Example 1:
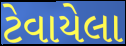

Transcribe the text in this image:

ટેવાયેલા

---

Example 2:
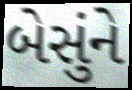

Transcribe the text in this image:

બેસુંને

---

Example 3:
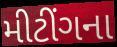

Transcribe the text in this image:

મીટીંગના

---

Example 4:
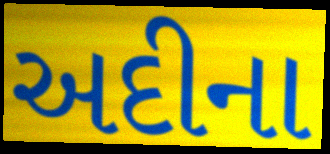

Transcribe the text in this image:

અદીના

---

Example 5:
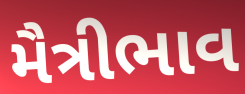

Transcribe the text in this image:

મૈત્રીભાવ